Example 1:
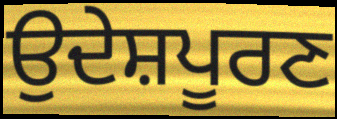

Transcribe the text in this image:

ਉਦੇਸ਼ਪੂਰਣ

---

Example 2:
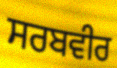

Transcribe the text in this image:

ਸਰਬਵੀਰ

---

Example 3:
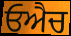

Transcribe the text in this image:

ਓਐਚ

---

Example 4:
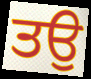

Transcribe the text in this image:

ਤਉ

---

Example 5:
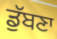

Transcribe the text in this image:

ਡੁੱਬਣਾ